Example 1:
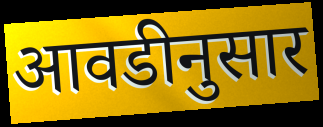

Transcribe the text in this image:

आवडीनुसार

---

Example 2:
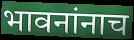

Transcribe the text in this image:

भावनांनाच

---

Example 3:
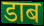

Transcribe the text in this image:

डाब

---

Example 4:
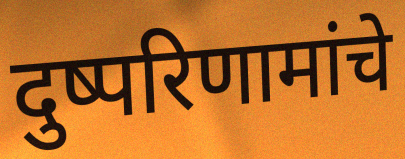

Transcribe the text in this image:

दुष्परिणामांचे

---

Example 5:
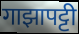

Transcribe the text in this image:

गाझापट्टी